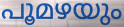
പൂമഴയും